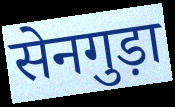
सेनगुड़ा